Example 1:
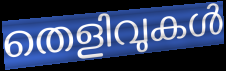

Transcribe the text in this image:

തെളിവുകൾ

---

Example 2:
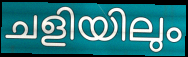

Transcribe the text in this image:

ചളിയിലും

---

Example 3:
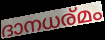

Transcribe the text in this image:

ദാനധര്മം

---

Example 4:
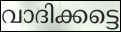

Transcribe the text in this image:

വാദിക്കട്ടെ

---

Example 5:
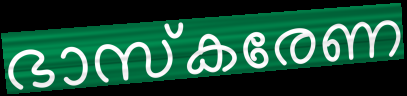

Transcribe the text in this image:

ഭാസ്കരേണ